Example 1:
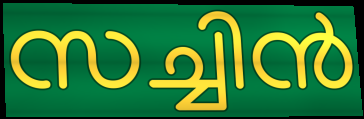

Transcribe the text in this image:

സച്ചിൻ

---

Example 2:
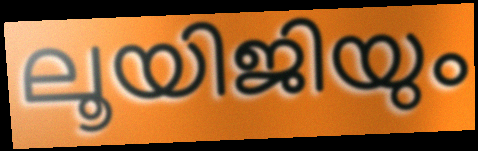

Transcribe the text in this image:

ലൂയിജിയും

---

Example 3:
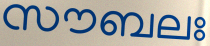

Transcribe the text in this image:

സൗബലഃ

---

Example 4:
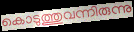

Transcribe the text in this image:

കൊടുത്തുവന്നിരുന്നു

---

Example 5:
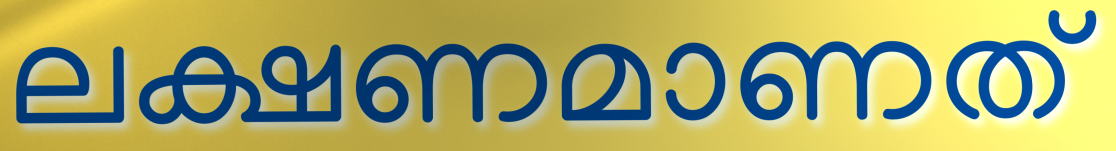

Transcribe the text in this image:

ലക്ഷണമാണത്